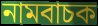
নামবাচক